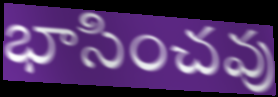
భాసించవు